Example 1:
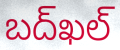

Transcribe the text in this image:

బద్‌ఖల్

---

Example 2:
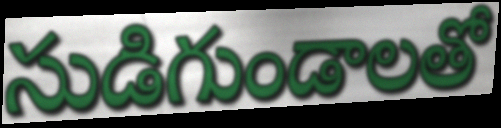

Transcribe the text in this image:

సుడిగుండాలతో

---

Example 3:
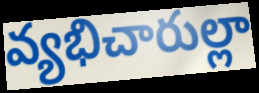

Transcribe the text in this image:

వ్యభిచారుల్లా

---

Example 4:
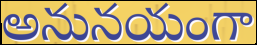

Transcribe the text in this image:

అనునయంగా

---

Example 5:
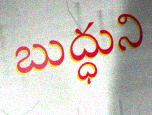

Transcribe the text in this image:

బుద్ధుని